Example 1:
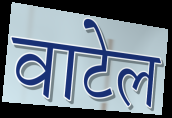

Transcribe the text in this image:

वाटेल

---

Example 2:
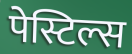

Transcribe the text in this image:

पेस्टिल्स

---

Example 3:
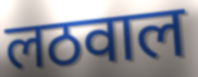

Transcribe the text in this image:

लठवाल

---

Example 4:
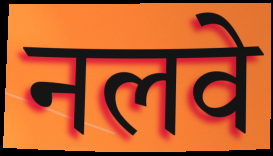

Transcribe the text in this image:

नलवे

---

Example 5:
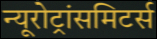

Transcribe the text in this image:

न्यूरोट्रांसमिटर्स